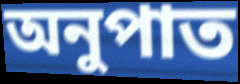
অনুপাত